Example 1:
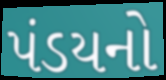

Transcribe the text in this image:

પંડયનો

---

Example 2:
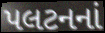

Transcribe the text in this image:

પલટનનાં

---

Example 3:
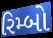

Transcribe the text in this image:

રિમ્બો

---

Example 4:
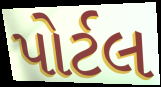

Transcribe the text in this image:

પોર્ટલ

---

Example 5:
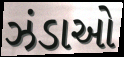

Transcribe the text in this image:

ઝંડાઓ